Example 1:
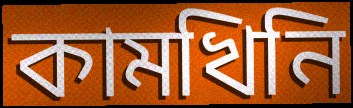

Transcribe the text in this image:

কামখিনি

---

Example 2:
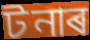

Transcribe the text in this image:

টনাৰ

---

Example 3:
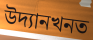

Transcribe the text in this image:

উদ্যানখনত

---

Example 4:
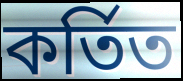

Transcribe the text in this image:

কৰ্তিত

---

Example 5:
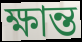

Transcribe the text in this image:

ক্ষান্ত